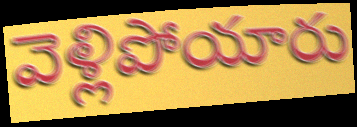
వెళ్లిపోయారు